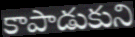
కాపాడుకుని